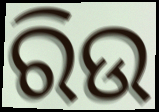
ରିଉ